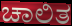
ಚಾಲಿತ